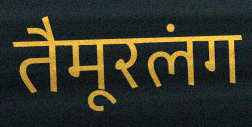
तैमूरलंग